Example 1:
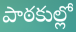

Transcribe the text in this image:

పాఠకుల్లో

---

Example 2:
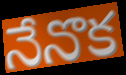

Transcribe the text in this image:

నేనొక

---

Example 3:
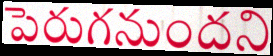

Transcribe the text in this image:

పెరుగనుందని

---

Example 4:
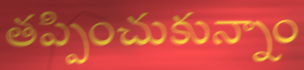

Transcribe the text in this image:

తప్పించుకున్నాం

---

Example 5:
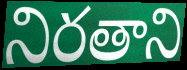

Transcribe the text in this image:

నిరతాని